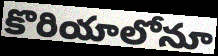
కొరియాలోనూ